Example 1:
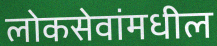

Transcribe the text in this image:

लोकसेवांमधील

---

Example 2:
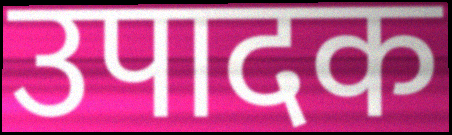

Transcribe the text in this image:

उपादक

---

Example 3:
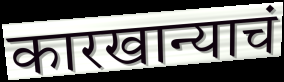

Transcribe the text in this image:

कारखान्याचं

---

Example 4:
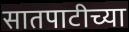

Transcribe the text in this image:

सातपाटीच्या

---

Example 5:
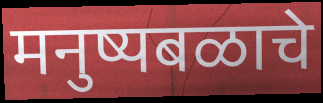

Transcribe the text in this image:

मनुष्यबळाचे